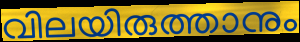
വിലയിരുത്താനും